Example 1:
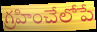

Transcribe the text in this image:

గ్రహించేలోపే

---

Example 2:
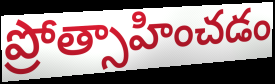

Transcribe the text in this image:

ప్రోత్సాహించడం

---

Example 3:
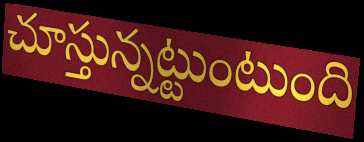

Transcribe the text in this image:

చూస్తున్నట్టుంటుంది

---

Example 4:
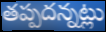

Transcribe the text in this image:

తప్పదన్నట్లు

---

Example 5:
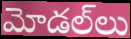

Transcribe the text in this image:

మోడల్‌లు